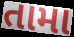
તામા